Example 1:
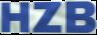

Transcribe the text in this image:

HZB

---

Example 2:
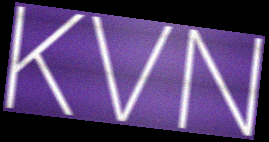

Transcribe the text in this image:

KVN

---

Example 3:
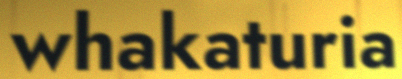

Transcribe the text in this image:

whakaturia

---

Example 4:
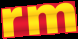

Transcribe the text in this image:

rm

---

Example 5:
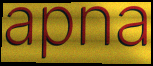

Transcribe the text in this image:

apna